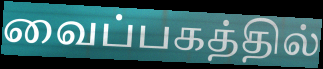
வைப்பகத்தில்